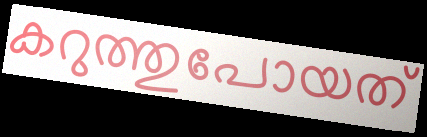
കറുത്തുപോയത്